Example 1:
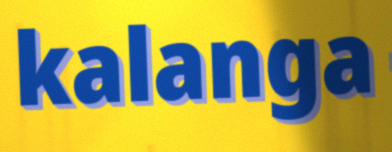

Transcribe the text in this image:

kalanga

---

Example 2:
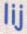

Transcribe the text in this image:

lij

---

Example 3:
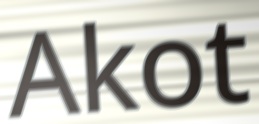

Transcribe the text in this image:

Akot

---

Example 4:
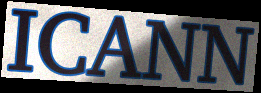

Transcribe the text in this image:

ICANN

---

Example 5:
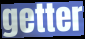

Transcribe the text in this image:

getter